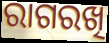
ରାଗରଖି